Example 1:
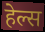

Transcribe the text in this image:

हेल्स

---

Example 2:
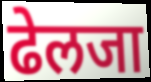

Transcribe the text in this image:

ढेलजा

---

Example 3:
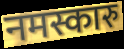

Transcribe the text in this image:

नमस्कारु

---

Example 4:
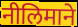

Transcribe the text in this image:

नीलिमाने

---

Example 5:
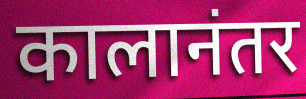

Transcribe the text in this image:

कालानंतर